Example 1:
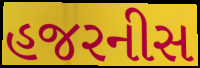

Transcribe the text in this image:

હજરનીસ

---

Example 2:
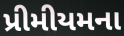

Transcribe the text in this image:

પ્રીમીયમના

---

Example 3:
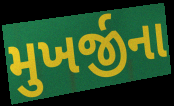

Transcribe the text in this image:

મુખર્જીના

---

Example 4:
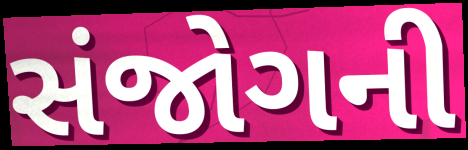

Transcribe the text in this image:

સંજોગની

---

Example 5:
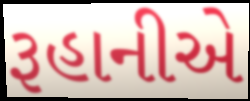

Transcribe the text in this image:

રૂહાનીએ